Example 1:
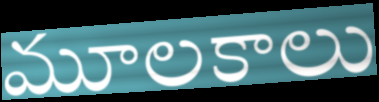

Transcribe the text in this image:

మూలకాలు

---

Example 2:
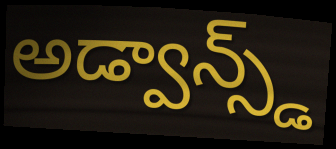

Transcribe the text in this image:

అడ్వాన్స్డ్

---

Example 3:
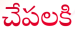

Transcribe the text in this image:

చేపలకి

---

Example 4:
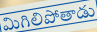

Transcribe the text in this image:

మిగిలిపోతాడు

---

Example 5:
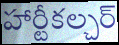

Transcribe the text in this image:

హార్టీకల్చర్